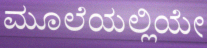
ಮೂಲೆಯಲ್ಲಿಯೇ